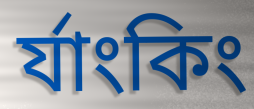
র্যাংকিং